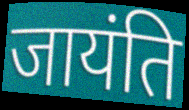
जायंति